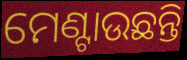
ମେଣ୍ଟାଉଛନ୍ତି